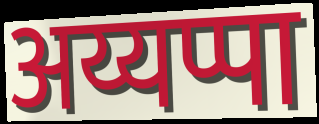
अय्यप्पा